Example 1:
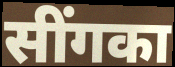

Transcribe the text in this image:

सींगका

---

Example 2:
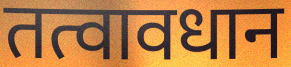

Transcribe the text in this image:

तत्‍वावधान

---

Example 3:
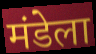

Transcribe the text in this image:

मंडेला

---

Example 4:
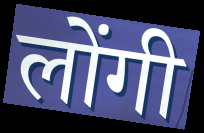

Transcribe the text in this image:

लोंगी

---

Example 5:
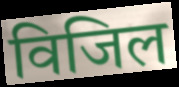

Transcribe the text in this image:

विजिल